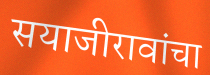
सयाजीरावांचा